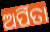
ଅର୍ପିତା